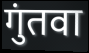
गुंतवा